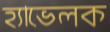
হ্যাভেলক